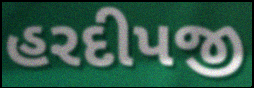
હરદીપજી